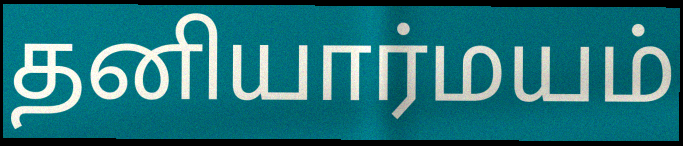
தனியார்மயம்